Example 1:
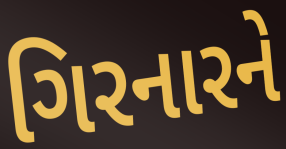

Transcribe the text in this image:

ગિરનારને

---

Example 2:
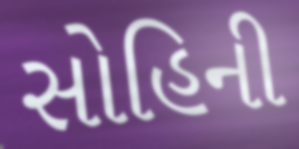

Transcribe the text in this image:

સોહિની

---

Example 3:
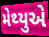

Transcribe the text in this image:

મેથ્યુએ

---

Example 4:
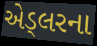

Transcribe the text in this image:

એડ્લરના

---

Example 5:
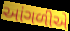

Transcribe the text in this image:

આંગળીએ